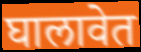
घालावेत